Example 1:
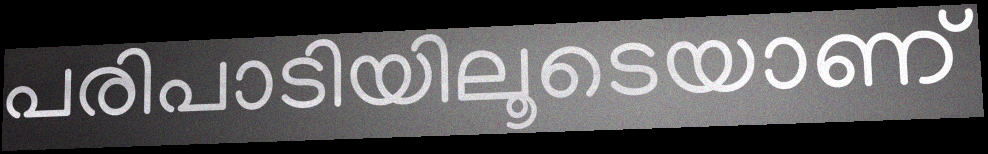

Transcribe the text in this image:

പരിപാടിയിലൂടെയാണ്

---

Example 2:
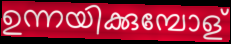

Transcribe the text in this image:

ഉന്നയിക്കുമ്പോള്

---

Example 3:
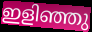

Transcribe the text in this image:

ഇളിഞ്ഞു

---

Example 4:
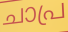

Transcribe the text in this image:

ചാപ്ര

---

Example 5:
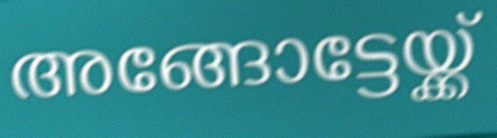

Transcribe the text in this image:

അങ്ങോട്ടേയ്ക്ക്